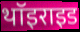
थॉइराइड